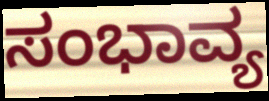
ಸಂಭಾವ್ಯ